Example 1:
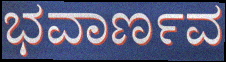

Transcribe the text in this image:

ಭವಾರ್ಣವ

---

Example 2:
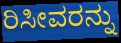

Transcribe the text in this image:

ರಿಸೀವರನ್ನು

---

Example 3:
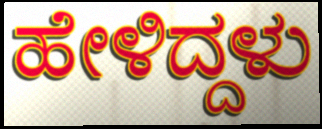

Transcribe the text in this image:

ಹೇಳಿದ್ದಳು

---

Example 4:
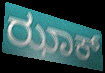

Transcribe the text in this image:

ಝಾಕ್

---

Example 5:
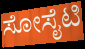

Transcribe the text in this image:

ಸೋಸೈಟಿ